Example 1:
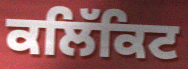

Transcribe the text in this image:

ਕਲਿੱਕਿਟ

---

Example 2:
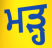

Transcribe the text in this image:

ਮੜ੍ਹ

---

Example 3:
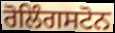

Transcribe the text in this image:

ਰੋਲਿੰਗਸਟੋਨ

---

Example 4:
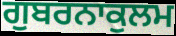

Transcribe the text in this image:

ਗੁਬਰਨਾਕੁਲਮ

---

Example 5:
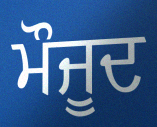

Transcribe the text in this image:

ਮੌਜੂਦ